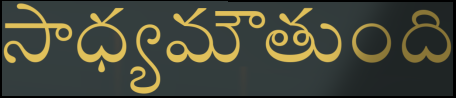
సాధ్యమౌతుంది